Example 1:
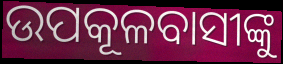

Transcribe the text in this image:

ଉପକୂଳବାସୀଙ୍କୁ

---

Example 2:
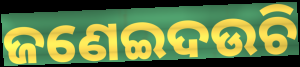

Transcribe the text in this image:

ଜଣେଇଦଉଚି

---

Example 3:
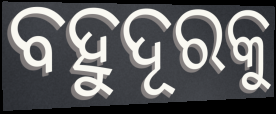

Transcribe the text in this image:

ବହୁଦୂରକୁ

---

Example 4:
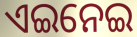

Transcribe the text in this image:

ଏଇନେଇ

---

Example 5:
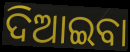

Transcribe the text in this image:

ଦିଆଇବା